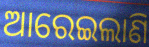
ଆରେଇଲାଣି